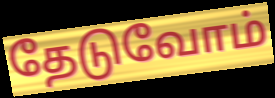
தேடுவோம்